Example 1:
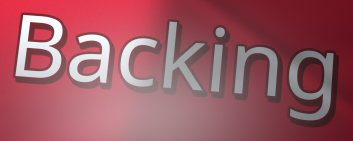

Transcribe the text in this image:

Backing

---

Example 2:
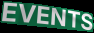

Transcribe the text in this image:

EVENTS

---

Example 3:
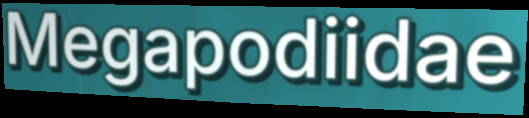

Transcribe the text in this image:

Megapodiidae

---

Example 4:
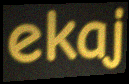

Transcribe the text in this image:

ekaj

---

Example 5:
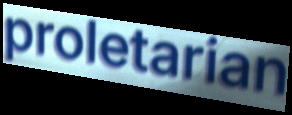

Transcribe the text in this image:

proletarian